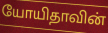
யோயிதாவின்